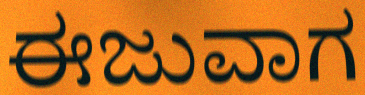
ಈಜುವಾಗ